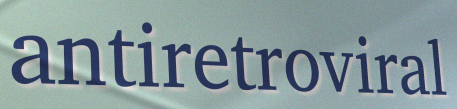
antiretroviral